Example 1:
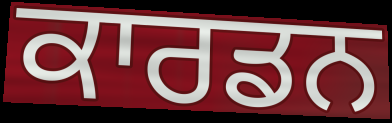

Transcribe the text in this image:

ਕਾਰਡਨ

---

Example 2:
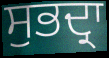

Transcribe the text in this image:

ਸੁਭਦ੍ਰਾ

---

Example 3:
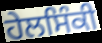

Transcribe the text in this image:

ਹੇਲਸਿੰਕੀ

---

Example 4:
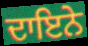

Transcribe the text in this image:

ਦਾਇਨੇ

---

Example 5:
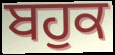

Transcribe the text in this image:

ਬਹੁਕ